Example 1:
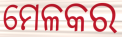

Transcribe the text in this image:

ମେଳକର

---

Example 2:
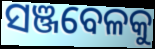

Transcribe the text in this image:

ସଞ୍ଜବେଳକୁ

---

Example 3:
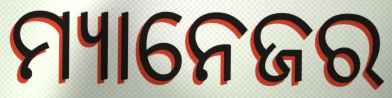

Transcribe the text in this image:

ମ୍ୟାନେଜର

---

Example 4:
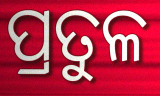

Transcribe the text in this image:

ପ୍ରତୁଳ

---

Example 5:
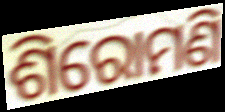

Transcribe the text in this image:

ଶିରୋମଣି